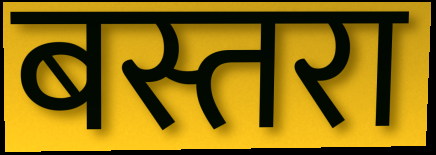
बस्तरा